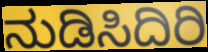
ನುಡಿಸಿದಿರಿ